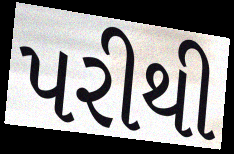
પરીથી